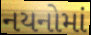
નયનોમાં